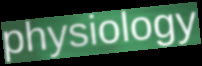
physiology